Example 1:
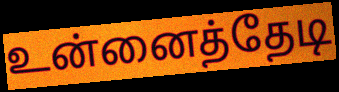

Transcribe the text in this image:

உன்னைத்தேடி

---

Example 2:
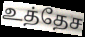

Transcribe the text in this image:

உத்தேச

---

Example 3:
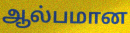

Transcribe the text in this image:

ஆல்பமான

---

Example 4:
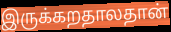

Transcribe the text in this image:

இருக்கறதாலதான்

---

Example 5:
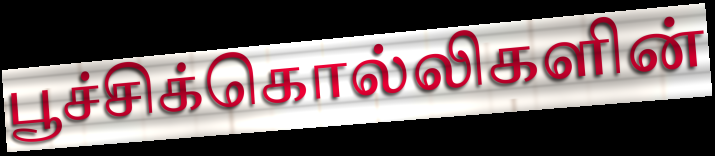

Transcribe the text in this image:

பூச்சிக்கொல்லிகளின்